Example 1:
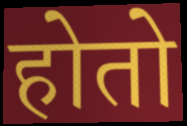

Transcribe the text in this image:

होतो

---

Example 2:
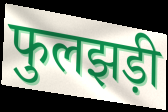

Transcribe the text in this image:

फुलझड़ी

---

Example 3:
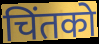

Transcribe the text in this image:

चिंतको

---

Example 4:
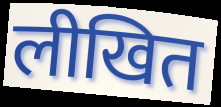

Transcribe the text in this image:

लीखित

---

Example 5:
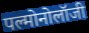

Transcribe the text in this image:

पल्मोनोलॉजी